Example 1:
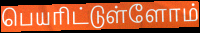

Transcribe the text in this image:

பெயரிட்டுள்ளோம்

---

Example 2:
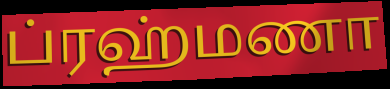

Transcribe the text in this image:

ப்ரஹ்மணா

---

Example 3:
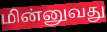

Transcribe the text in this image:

மின்னுவது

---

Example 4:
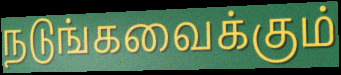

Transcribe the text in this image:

நடுங்கவைக்கும்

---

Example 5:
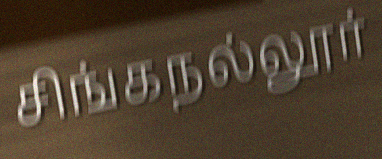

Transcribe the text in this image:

சிங்கநல்லூர்